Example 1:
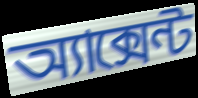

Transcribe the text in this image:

অ্যাক্সেন্ট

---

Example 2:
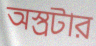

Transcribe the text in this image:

অস্ত্রটার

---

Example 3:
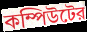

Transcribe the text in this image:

কম্পিউটের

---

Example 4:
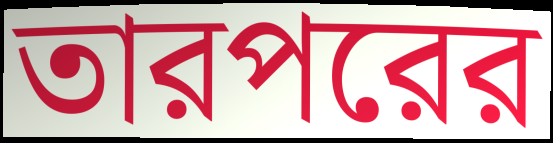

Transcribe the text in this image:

তারপরের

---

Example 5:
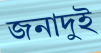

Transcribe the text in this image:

জনাদুই